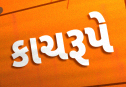
કાચરૂપે